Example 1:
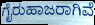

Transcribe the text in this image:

ಗೈರುಹಾಜರಾಗಿವೆ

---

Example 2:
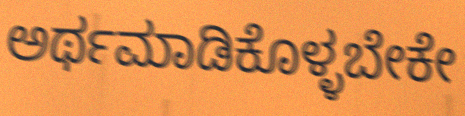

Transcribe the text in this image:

ಅರ್ಥಮಾಡಿಕೊಳ್ಳಬೇಕೇ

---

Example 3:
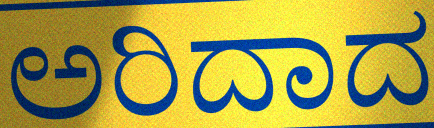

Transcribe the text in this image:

ಅರಿದಾದ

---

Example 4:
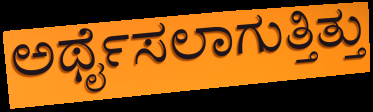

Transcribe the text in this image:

ಅರ್ಥೈಸಲಾಗುತ್ತಿತ್ತು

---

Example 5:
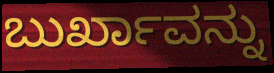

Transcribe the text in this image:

ಬುರ್ಖಾವನ್ನು